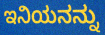
ಇನಿಯನನ್ನು